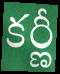
కర్ణీ